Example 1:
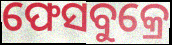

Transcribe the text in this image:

ଫେସବୁକ୍ରେ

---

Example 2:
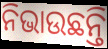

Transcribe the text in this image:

ନିଭାଉଛନ୍ତି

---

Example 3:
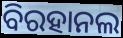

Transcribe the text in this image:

ବିରହାନଲ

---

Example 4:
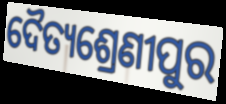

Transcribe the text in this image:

ଦୈତ୍ୟଶ୍ରେଣୀପୁର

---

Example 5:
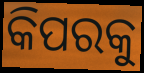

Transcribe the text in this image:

କିପରକୁ